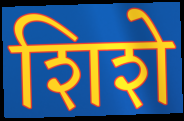
शिशे